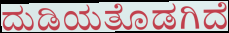
ದುಡಿಯತೊಡಗಿದೆ